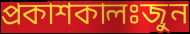
প্রকাশকালঃজুন